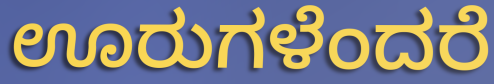
ಊರುಗಳೆಂದರೆ